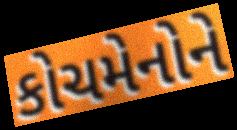
કોચમેનોને